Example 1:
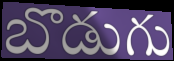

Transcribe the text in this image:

బొడుగు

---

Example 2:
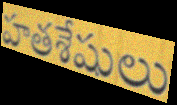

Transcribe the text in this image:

హతశేషులు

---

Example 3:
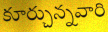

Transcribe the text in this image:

కూర్చున్నవారి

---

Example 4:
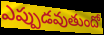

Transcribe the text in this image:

ఎప్పుడవుతుందో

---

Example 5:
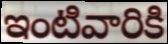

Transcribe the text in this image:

ఇంటివారికి